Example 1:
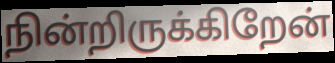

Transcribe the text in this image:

நின்றிருக்கிறேன்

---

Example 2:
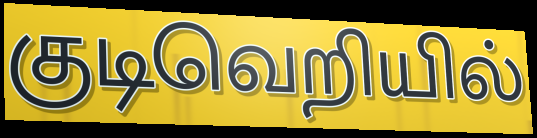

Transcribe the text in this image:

குடிவெறியில்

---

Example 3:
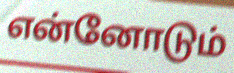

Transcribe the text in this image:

என்னோடும்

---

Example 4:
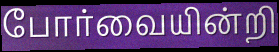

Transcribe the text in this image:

போர்வையின்றி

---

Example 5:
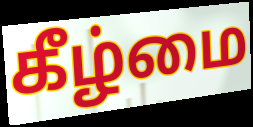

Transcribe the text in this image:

கீழ்மை